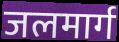
जलमार्ग